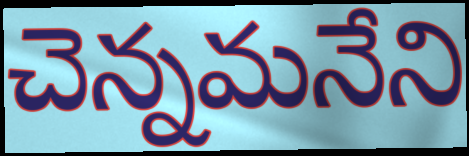
చెన్నమనేని